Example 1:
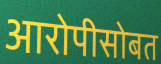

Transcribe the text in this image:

आरोपीसोबत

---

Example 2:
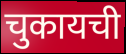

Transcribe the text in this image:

चुकायची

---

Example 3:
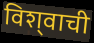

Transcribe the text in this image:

विश्वाची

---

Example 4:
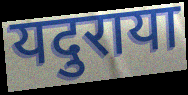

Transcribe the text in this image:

यदुराया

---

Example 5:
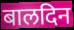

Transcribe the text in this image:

बालदिन